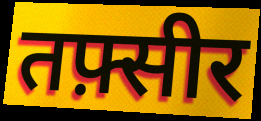
तफ़्सीर